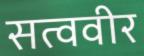
सत्ववीर